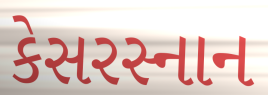
કેસરસ્નાન